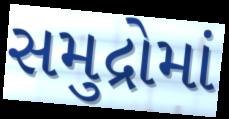
સમુદ્રોમાં